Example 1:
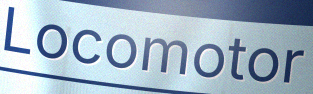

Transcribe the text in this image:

Locomotor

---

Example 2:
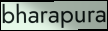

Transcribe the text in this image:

bharapura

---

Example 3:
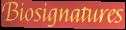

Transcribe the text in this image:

Biosignatures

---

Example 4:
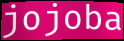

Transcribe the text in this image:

jojoba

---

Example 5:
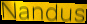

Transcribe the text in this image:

Nandus